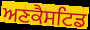
ਅਣਕੈਸਟਿਡ